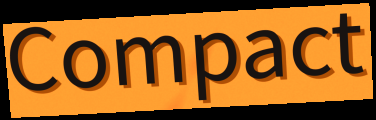
Compact